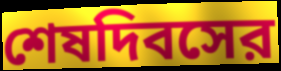
শেষদিবসের